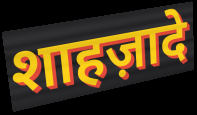
शाहज़ादे